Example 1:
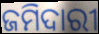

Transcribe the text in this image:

ଜମିଦାରୀ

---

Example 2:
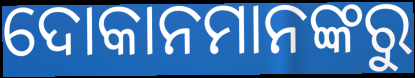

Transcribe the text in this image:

ଦୋକାନମାନଙ୍କରୁ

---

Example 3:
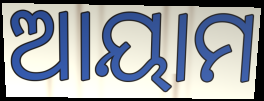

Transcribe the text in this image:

ଆୟାମ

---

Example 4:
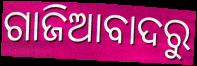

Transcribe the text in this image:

ଗାଜିଆବାଦରୁ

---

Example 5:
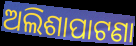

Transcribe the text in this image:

ଅଲିଶାପାଟଣା